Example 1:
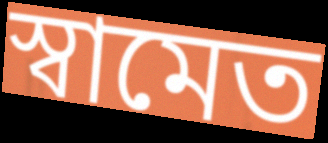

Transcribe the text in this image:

স্বামেত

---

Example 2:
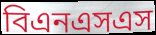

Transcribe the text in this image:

বিএনএসএস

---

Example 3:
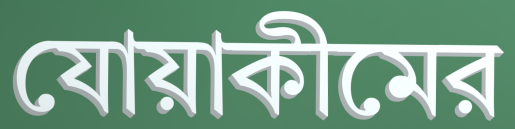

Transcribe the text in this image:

যোয়াকীমের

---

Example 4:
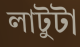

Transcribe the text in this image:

লাটুটা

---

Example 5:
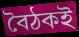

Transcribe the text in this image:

বৈঠকই